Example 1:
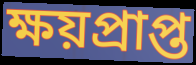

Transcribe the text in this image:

ক্ষয়প্রাপ্ত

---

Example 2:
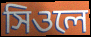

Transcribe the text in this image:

সিওলে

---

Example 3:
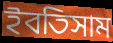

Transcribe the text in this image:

ইবতিসাম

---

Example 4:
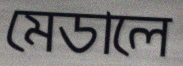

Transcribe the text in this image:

মেডালে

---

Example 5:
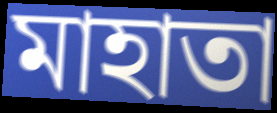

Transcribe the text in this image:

মাহাতা